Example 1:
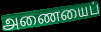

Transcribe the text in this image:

அணையைப்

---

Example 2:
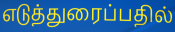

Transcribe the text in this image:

எடுத்துரைப்பதில்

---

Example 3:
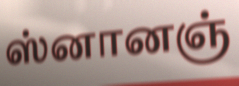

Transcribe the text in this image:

ஸ்னானஞ்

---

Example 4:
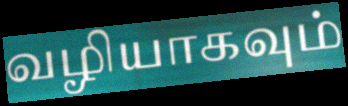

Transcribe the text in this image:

வழியாகவும்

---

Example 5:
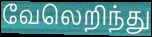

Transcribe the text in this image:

வேலெறிந்து